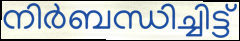
നിർബന്ധിച്ചിട്ട്